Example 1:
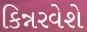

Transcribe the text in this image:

કિન્નરવેશે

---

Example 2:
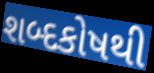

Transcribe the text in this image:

શબ્દકોષથી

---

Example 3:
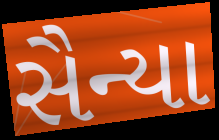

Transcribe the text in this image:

સૈન્યા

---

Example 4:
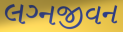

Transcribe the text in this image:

લગ્‍નજીવન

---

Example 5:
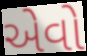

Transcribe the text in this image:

એેવો